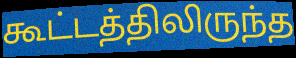
கூட்டத்திலிருந்த